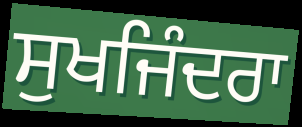
ਸੁਖਜਿੰਦਰਾ